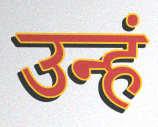
उन्हं